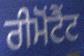
ਰੀਮੋਂਟੈਂਟ